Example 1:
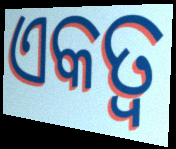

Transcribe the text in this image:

ଏକତ୍ୱ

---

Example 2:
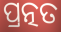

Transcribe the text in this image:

ପ୍ରତ୍ନତ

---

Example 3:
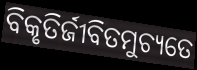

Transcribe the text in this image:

ବିକୃତିର୍ଜୀବିତମୁଚ୍ୟତେ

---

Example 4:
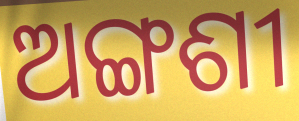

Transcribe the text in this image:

ଅଙ୍ଗଶୀ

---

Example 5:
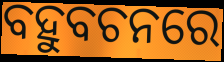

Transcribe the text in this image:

ବହୁବଚନରେ